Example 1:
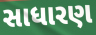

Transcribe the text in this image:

સાધારણ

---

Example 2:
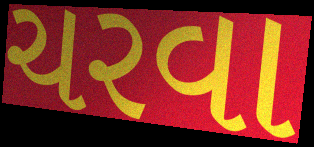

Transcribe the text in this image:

ચરવા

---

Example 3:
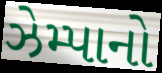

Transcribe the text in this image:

ઝેમ્પાનો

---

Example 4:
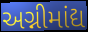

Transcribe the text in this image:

અગ્નીમાંદ્ય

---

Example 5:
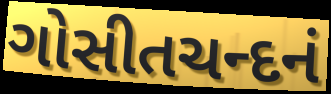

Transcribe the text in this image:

ગોસીતચન્દનં